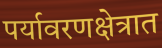
पर्यावरणक्षेत्रात